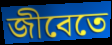
জীবেতে